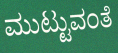
ಮುಟ್ಟುವಂತೆ